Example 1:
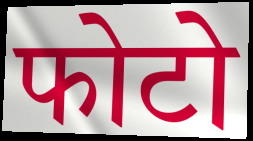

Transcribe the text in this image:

फोटो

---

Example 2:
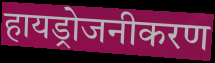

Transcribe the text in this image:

हायड्रोजनीकरण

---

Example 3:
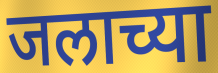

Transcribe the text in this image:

जलाच्या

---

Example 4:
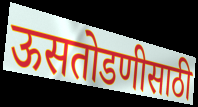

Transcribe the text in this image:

ऊसतोडणीसाठी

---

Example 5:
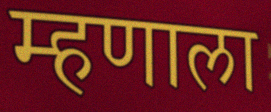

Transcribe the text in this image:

म्हणाला